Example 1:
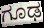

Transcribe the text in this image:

ಗೂಢ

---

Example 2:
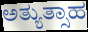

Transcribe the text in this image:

ಅತ್ಯುತ್ಸಾಹ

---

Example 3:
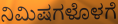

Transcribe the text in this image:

ನಿಮಿಷಗಳೊಳಗೆ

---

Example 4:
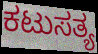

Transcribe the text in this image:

ಕಟುಸತ್ಯ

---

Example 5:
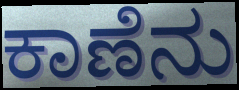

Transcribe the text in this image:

ಕಾಣೆನು